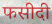
फसीदी